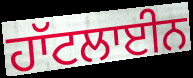
ਹਾੱਟਲਾਈਨ